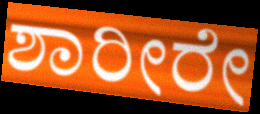
ಶಾರೀರೇ